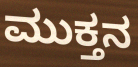
ಮುಕ್ತನ